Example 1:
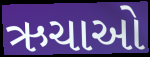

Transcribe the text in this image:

ઋચાઓ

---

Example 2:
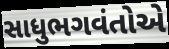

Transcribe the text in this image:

સાધુભગવંતોએ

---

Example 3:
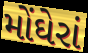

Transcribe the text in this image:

મોંઘેરાં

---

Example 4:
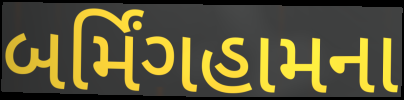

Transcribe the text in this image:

બર્મિંગહામના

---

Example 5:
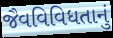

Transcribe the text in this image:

જૈવવિવિધતાનું